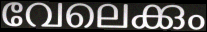
വേലെക്കും